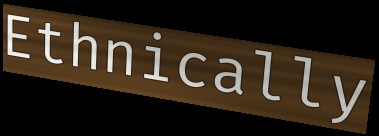
Ethnically